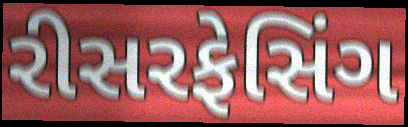
રીસરફેસિંગ